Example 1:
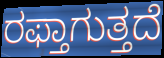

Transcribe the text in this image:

ರಫ್ತಾಗುತ್ತದೆ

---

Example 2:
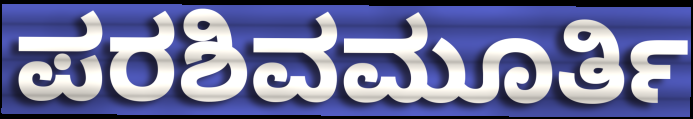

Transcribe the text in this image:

ಪರಶಿವಮೂರ್ತಿ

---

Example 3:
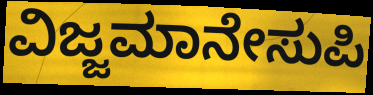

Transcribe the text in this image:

ವಿಜ್ಜಮಾನೇಸುಪಿ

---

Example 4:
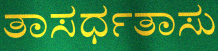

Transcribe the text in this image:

ತಾಸರ್ಧತಾಸು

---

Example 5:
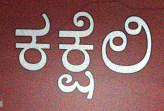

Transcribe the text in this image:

ಕಕ್ಷೆಲಿ